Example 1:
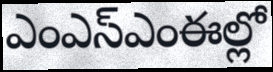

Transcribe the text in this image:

ఎంఎస్ఎంఈల్లో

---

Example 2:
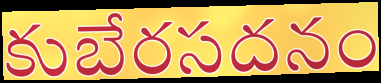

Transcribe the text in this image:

కుబేరసదనం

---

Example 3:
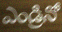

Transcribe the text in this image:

ఎండ్రినో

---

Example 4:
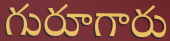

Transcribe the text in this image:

గురూగారు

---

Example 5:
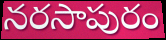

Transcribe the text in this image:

నరసాపురం